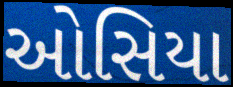
ઓસિયા